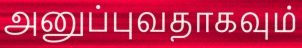
அனுப்புவதாகவும்